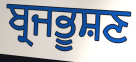
ਬ੍ਰਜਭੂਸ਼ਣ